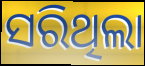
ସରିଥିଲା